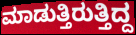
ಮಾಡುತ್ತಿರುತ್ತಿದ್ದ